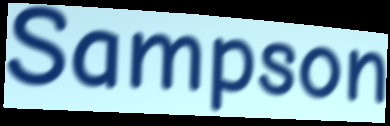
Sampson